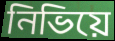
নিভিয়ে